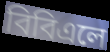
বিবিএলে